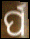
ର୍ପ